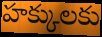
హక్కులకు